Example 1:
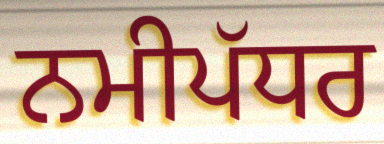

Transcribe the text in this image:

ਨਮੀਪੱਧਰ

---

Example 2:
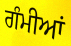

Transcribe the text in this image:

ਗੰਮੀਆਂ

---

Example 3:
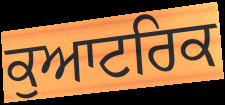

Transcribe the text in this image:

ਕੁਆਟਰਿਕ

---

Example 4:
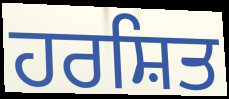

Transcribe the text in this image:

ਹਰਸ਼ਿਤ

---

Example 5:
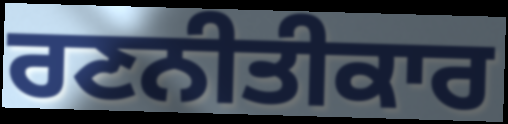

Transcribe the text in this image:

ਰਣਨੀਤੀਕਾਰ